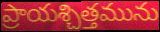
ప్రాయశ్చిత్తమును